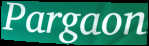
Pargaon